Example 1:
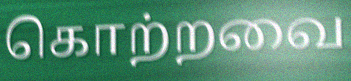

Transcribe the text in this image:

கொற்றவை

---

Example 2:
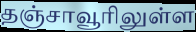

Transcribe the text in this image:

தஞ்சாவூரிலுள்ள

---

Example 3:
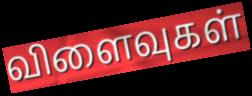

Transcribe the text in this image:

விளைவுகள்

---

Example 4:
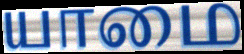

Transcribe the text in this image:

யாமை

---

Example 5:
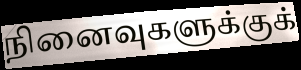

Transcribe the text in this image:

நினைவுகளுக்குக்